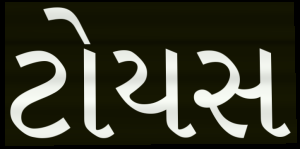
ટોયસ